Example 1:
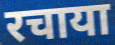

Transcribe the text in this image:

रचाया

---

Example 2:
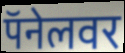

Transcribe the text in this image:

पॅनेलवर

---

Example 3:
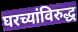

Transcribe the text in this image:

घरच्यांविरुद्ध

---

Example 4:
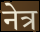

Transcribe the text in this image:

नेत्र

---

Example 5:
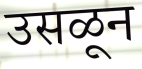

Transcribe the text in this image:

उसळून